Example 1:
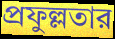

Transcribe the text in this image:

প্রফুল্লতার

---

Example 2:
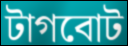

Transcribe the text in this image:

টাগবোট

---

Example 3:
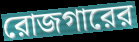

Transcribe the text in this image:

রোজগারের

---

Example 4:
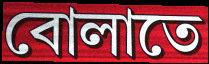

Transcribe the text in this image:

বোলাতে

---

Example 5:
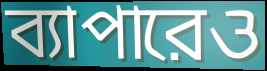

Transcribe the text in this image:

ব্যাপারেও